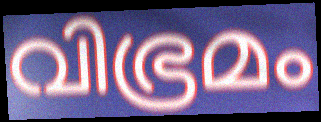
വിഭ്രമം